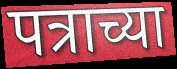
पत्राच्या